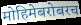
मोहिमेबरोबरच